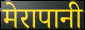
मेरापानी